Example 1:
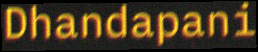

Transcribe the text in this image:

Dhandapani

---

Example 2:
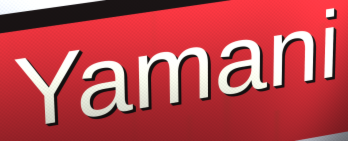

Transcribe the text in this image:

Yamani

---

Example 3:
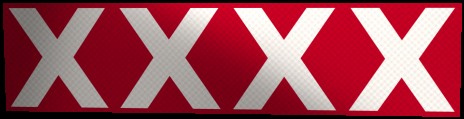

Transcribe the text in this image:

xxxx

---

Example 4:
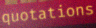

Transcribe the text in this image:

quotations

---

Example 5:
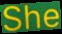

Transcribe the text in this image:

She